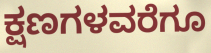
ಕ್ಷಣಗಳವರೆಗೂ